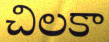
చిలకా